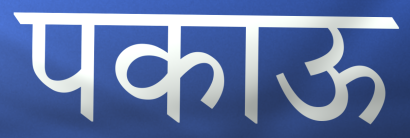
पकाऊ